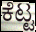
ಕೆಟ್ಟ